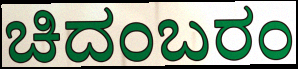
ಚಿದಂಬರಂ